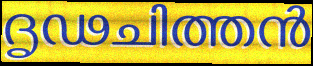
ദൃഢചിത്തൻ